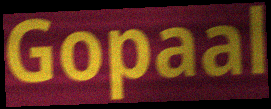
Gopaal